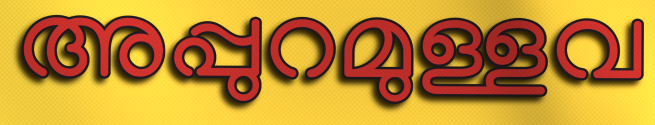
അപ്പുറമുള്ളവ